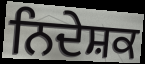
ਨਿਦੇਸ਼ਕ